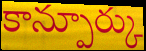
కాన్పూర్కు